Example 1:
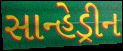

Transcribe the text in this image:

સાન્હેડ્રીન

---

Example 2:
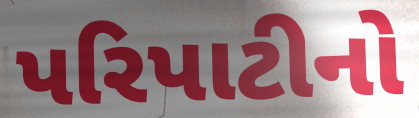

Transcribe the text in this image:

પરિપાટીનો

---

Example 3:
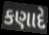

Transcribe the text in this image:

કણાદે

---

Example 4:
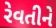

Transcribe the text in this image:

રેવતીને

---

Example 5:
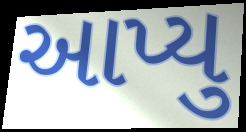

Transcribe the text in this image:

આપ્યુ